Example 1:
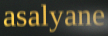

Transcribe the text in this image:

asalyane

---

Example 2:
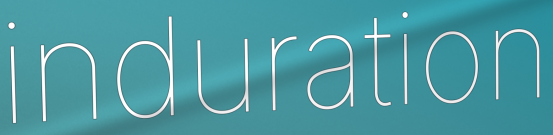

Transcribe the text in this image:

induration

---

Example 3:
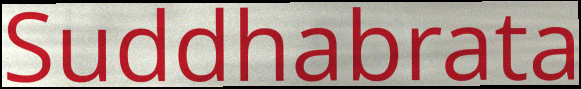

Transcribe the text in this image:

Suddhabrata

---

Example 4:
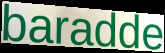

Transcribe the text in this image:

baradde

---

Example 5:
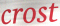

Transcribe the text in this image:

crost